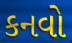
કનવો